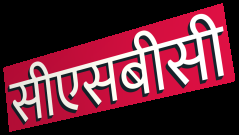
सीएसबीसी